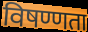
विषण्णता